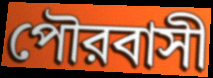
পৌরবাসী